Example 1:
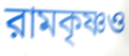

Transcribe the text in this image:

রামকৃষ্ণও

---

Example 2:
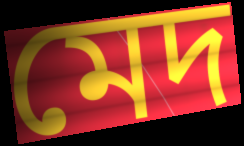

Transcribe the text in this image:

মেদ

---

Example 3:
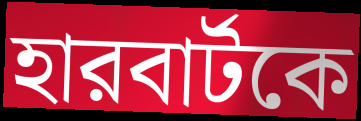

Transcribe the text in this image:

হারবার্টকে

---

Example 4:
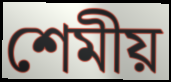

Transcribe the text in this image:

শেমীয়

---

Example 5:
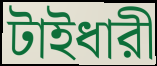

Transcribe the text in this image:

টাইধারী